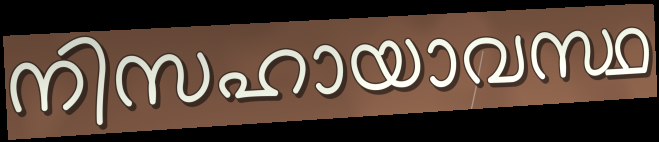
നിസഹായാവസ്ഥ